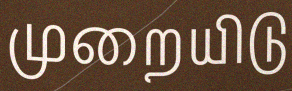
முறையிடு